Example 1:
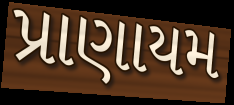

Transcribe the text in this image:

પ્રાણાયમ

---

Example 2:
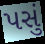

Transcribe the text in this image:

પસું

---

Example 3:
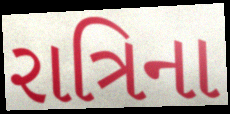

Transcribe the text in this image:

રાત્રિના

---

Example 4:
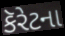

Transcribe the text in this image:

કૅરેટના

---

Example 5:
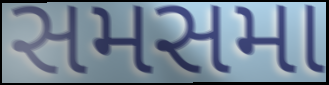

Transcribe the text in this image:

સમસમા